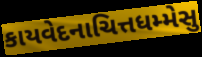
કાયવેદનાચિત્તધમ્મેસુ